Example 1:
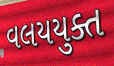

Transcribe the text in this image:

વલયયુક્ત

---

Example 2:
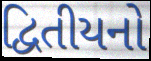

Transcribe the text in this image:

દ્વિતીયનો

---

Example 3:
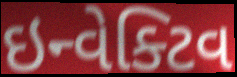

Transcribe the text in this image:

ઇન્વેક્ટિવ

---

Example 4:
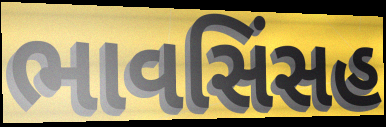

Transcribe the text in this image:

ભાવસિંસહ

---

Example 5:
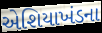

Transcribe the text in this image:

એશિયાખંડના